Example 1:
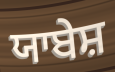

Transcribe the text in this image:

ਯਾਬੇਸ਼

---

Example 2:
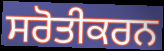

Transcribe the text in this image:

ਸਰੋਤੀਕਰਨ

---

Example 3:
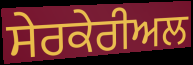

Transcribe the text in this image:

ਸੇਰਕੇਰੀਅਲ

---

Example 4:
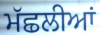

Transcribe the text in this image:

ਮੱਛਲੀਆਂ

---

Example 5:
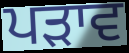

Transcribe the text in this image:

ਪੜਾਵ